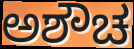
ಅಶೌಚ